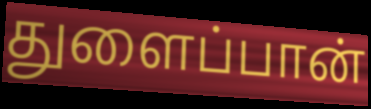
துளைப்பான்